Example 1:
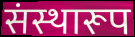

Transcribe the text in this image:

संस्थारूप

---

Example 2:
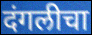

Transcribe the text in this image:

दंगलीचा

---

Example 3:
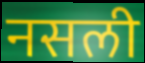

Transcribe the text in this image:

नसली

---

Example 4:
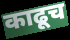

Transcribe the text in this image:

काढूच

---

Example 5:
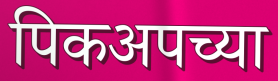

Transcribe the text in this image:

पिकअपच्या